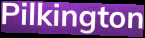
Pilkington